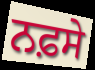
ਨਫ਼ਸੇ